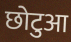
छोटुआ